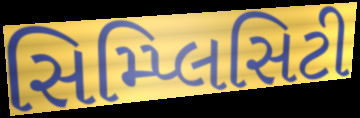
સિમ્પ્લિસિટી